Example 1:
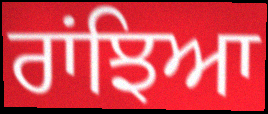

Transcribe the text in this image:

ਰਾਂਝਿਆ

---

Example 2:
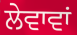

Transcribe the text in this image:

ਲੇਵਾਵਾਂ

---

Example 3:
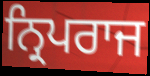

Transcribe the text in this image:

ਨ੍ਰਿਪਰਾਜ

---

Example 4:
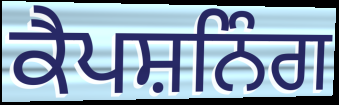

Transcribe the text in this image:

ਕੈਪਸ਼ਨਿੰਗ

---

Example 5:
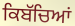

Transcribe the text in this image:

ਕਿਬੱਚਿਆਂ